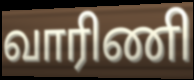
வாரிணி